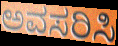
ಅವಸರಿಸಿ